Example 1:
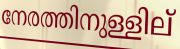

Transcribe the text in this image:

നേരത്തിനുള്ളില്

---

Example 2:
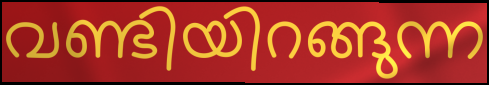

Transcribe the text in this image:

വണ്ടിയിറങ്ങുന്ന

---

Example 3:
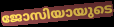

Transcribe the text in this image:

ജോസിയായുടെ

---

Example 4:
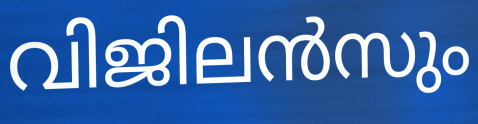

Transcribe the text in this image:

വിജിലൻസും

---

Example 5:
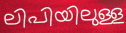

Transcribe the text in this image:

ലിപിയിലുള്ള